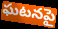
ఘటనపై